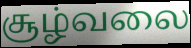
சூழ்வலை